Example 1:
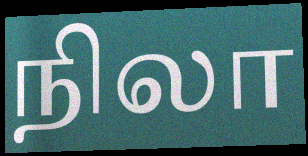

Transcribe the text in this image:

நிலா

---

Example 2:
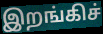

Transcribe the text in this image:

இறங்கிச்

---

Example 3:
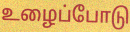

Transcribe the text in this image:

உழைப்போடு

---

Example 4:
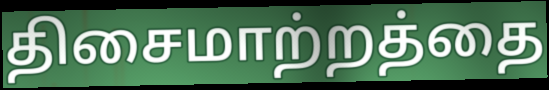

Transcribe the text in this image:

திசைமாற்றத்தை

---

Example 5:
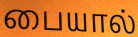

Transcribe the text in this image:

பையால்